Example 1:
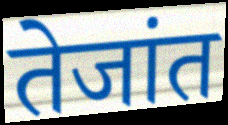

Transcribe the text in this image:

तेजांत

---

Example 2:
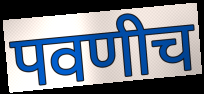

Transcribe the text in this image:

पवणीच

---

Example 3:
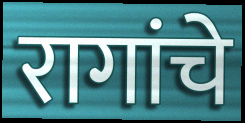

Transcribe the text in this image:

रागांचे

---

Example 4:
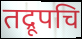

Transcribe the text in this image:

तद्रूपचि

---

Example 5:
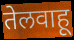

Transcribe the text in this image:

तेलवाहू